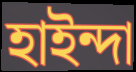
হাইন্দা